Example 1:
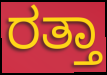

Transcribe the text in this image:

ರತ್ತಾ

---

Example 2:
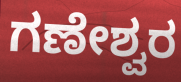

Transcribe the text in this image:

ಗಣೇಶ್ವರ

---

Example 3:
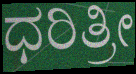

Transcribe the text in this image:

ಧರಿತ್ರೀ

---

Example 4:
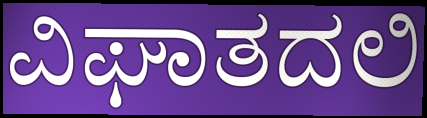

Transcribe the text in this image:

ವಿಘಾತದಲಿ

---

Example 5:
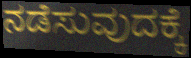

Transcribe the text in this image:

ನಡೆಸುವುದಕ್ಕೆ